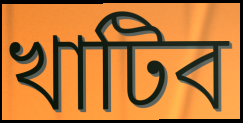
খাটিব